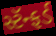
સ્ટૅન્ફર્ડ